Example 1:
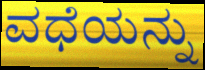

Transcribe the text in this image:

ವಧೆಯನ್ನು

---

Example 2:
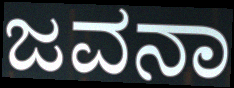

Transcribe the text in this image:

ಜವನಾ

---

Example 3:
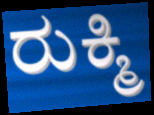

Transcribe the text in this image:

ರುಕ್ಮಿ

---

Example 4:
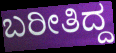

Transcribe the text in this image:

ಬರೀತಿದ್ದ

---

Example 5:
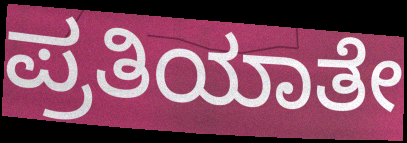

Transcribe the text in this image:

ಪ್ರತಿಯಾತೇ